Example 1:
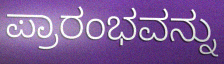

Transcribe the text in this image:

ಪ್ರಾರಂಭವನ್ನು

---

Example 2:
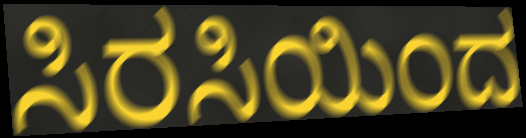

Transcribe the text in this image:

ಸಿರಸಿಯಿಂದ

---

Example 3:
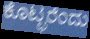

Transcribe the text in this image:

ಕೊಟ್ಟರೆಂದು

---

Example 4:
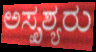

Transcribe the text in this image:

ಅಸ್ಪೃಶ್ಯರು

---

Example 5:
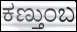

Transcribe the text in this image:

ಕಣ್ತುಂಬ